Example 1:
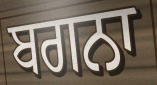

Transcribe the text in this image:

ਬਗਨਾ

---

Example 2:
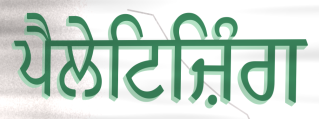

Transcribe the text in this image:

ਪੈਲੇਟਿਜ਼ਿੰਗ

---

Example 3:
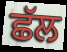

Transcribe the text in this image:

ਛੱਲ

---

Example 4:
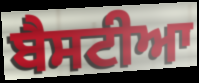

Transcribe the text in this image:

ਬੈਸਟੀਆ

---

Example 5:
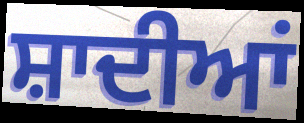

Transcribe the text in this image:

ਸ਼ਾਦੀਆਂ